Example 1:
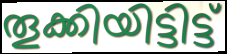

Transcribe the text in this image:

തൂക്കിയിട്ടിട്ട്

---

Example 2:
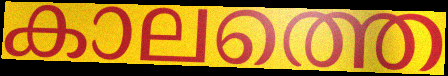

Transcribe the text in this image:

കാലത്തെ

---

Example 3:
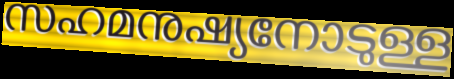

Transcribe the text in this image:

സഹമനുഷ്യനോടുള്ള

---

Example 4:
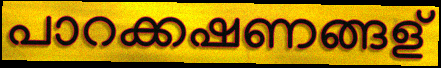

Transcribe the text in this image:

പാറക്കഷണങ്ങള്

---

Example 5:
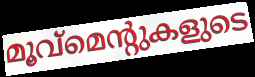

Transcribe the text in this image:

മൂവ്മെന്റുകളുടെ